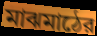
মাঝমাঠের